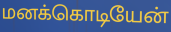
மனக்கொடியேன்